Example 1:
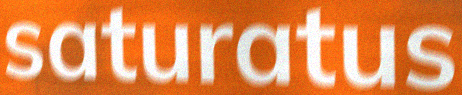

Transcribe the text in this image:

saturatus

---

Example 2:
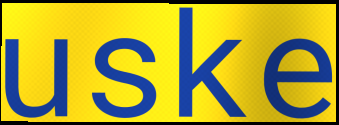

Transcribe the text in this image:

uske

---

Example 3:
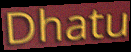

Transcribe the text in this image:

Dhatu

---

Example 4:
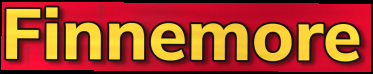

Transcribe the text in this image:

Finnemore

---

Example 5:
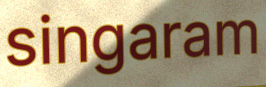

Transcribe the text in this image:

singaram